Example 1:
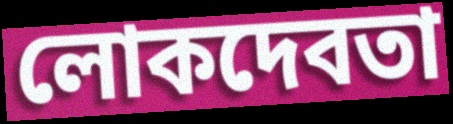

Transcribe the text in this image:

লোকদেবতা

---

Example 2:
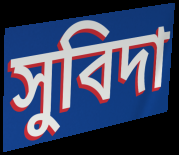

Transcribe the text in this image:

সুবিদা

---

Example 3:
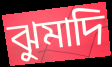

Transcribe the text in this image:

ঝুমাদি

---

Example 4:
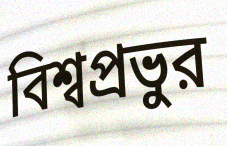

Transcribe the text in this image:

বিশ্বপ্রভুর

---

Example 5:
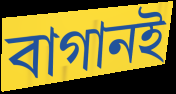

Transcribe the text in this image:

বাগানই